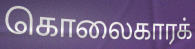
கொலைகாரக்